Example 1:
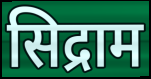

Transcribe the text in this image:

सिद्राम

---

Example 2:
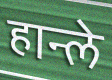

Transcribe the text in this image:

हान्ले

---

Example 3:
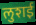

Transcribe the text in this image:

लुशई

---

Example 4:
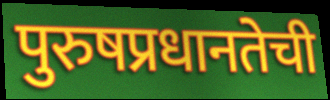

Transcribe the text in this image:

पुरुषप्रधानतेची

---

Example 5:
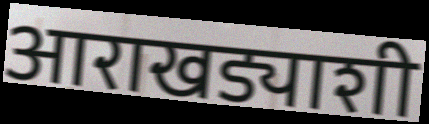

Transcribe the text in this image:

आराखड्याशी